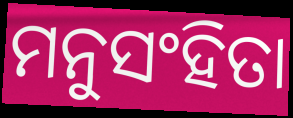
ମନୁସଂହିତା